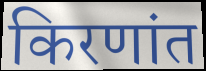
किरणांत